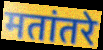
मतांतरे